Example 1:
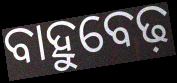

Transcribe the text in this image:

ବାହୁବେଢ଼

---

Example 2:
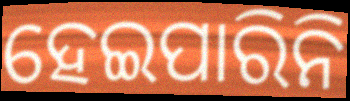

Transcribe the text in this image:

ହେଇପାରିନି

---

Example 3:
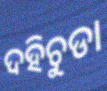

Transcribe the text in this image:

ଦହିଚୁଡା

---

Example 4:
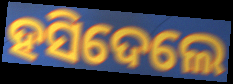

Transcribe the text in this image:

ହସିଦେଲେ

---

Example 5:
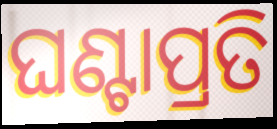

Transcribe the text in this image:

ଘଣ୍ଟାପ୍ରତି